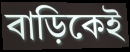
বাড়িকেই